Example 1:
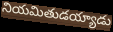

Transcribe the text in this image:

నియమితుడయ్యాడు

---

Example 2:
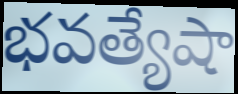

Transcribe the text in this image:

భవత్యేషా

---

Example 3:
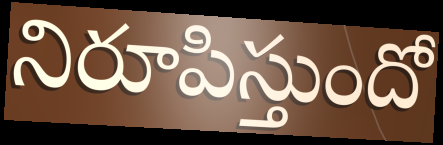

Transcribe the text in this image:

నిరూపిస్తుందో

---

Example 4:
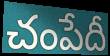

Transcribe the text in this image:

చంపేదీ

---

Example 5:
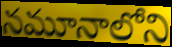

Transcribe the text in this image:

నమూనాలోని